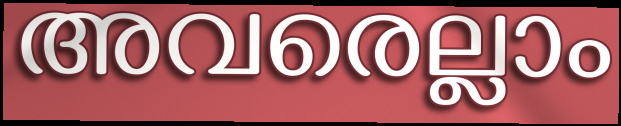
അവരെല്ലാം